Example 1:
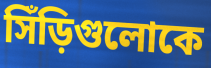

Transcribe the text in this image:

সিঁড়িগুলোকে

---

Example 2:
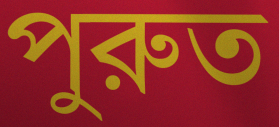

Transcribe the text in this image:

পুরুত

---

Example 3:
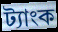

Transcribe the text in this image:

ট্যাংক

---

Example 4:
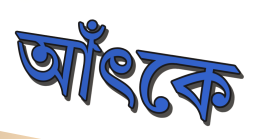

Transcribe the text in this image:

আঁৎকে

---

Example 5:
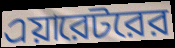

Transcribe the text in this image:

এয়ারেটরের